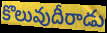
కొలువుదీరాడు